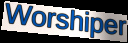
Worshiper